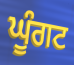
ਘੂੰਗਟ